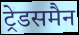
ट्रेडसमैन